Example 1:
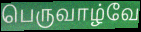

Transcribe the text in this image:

பெருவாழ்வே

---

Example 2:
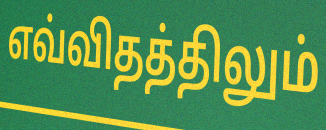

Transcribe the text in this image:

எவ்விதத்திலும்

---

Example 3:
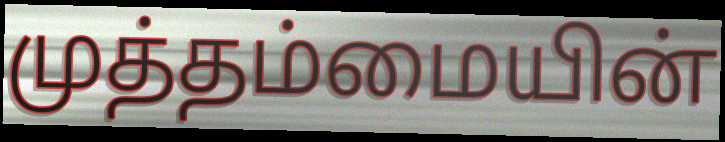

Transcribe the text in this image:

முத்தம்மையின்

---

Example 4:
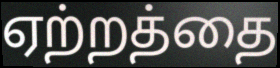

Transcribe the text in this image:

ஏற்றத்தை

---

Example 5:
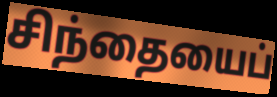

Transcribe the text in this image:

சிந்தையைப்